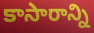
కాసారాన్ని